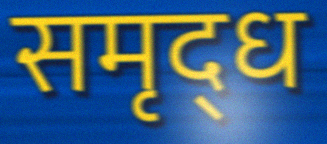
समृद्ध